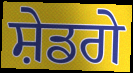
ਸ਼ੇਡਗੇ